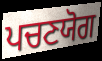
ਪਚਣਯੋਗ